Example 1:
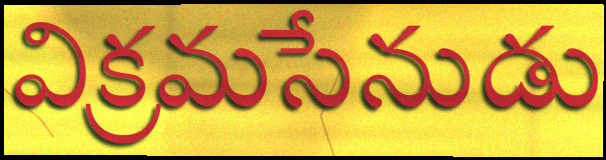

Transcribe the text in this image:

విక్రమసేనుడు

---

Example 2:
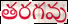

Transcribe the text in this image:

తరగవు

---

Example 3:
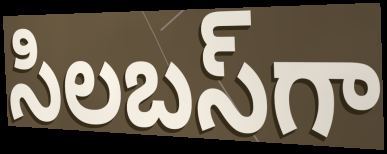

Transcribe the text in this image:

సిలబస్‌గా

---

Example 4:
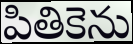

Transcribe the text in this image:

పితికెను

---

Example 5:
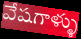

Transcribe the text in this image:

వేషగాళ్ళు